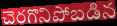
చెరగొనిపోబడిన